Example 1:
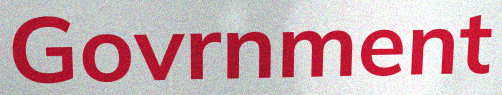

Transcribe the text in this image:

Govrnment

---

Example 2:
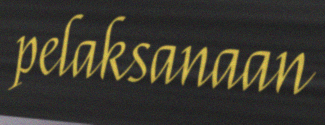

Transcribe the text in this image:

pelaksanaan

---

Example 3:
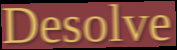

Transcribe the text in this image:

Desolve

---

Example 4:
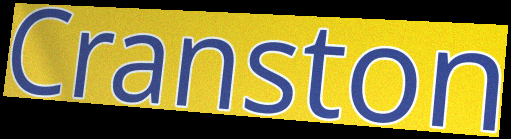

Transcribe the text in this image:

Cranston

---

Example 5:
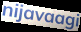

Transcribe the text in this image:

nijavaagi